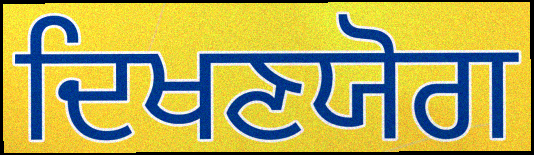
ਦਿਖਣਯੋਗ